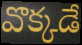
వొక్కడే